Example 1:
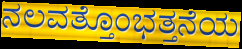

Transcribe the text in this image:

ನಲವತ್ತೊಂಭತ್ತನೆಯ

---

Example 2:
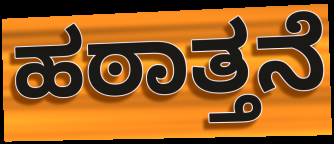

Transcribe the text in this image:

ಹಠಾತ್ತನೆ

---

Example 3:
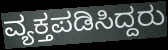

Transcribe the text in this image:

ವ್ಯಕ್ತಪಡಿಸಿದ್ದರು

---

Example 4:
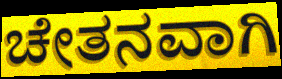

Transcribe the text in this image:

ಚೇತನವಾಗಿ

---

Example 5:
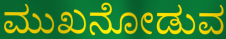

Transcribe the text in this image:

ಮುಖನೋಡುವ